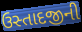
ઉસ્તાદજીની